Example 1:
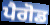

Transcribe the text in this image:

ਪੈਗੋਡ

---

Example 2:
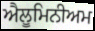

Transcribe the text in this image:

ਐਲੂਮਿਨੀਅਮ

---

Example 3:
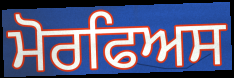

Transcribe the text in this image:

ਮੋਰਫਿਅਸ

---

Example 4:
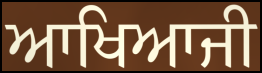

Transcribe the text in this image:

ਆਖਿਆਜੀ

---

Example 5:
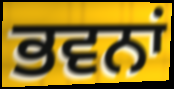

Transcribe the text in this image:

ਭਵਨਾਂ